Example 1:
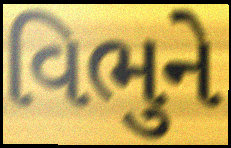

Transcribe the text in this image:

વિભુને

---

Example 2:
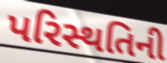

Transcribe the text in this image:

પરિસ્થતિની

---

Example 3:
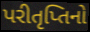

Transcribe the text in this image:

પરીતૃપ્તિનો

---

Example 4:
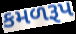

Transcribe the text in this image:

કમળરૂપ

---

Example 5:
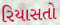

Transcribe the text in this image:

રિયાસતો